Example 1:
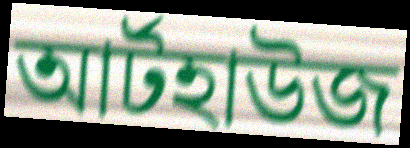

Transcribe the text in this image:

আর্টহাউজ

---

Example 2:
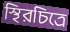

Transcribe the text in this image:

স্থিরচিত্রে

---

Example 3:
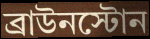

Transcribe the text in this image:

ব্রাউনস্টোন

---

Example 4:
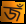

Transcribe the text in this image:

জঁ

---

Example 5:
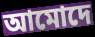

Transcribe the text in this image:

আমোদে